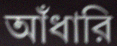
আঁধারি